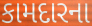
કામદારના